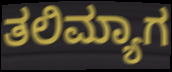
ತಲಿಮ್ಯಾಗ